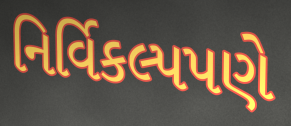
નિર્વિકલ્પપણે